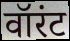
वॉरंट